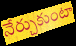
నేర్చుకుంటా